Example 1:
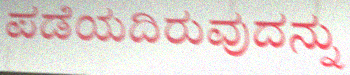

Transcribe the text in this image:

ಪಡೆಯದಿರುವುದನ್ನು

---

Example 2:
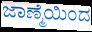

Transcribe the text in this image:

ಜಾಣ್ಮೆಯಿಂದ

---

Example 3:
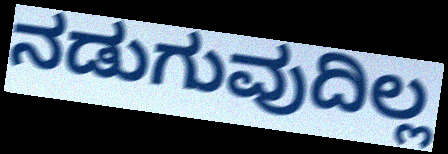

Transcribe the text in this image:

ನಡುಗುವುದಿಲ್ಲ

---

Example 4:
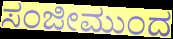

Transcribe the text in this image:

ಸಂಜೀಮುಂದ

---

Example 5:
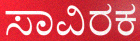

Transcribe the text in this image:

ಸಾವಿರಕ